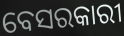
ବେସରକାରୀ